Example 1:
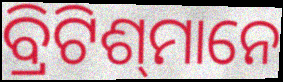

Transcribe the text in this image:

ବ୍ରିଟିଶ୍‍ମାନେ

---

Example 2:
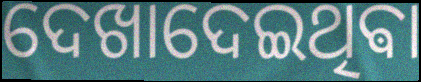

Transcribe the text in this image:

ଦେଖାଦେଇଥିଵା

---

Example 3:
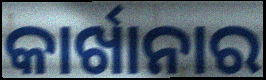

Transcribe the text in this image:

କାର୍ଖାନାର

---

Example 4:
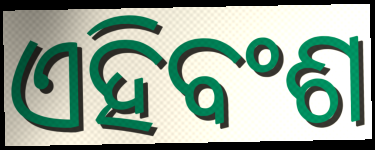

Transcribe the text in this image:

ଏହିବଂଶ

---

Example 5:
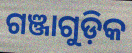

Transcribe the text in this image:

ଗଞ୍ଜାଗୁଡ଼ିକ